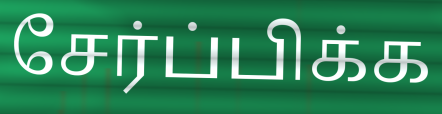
சேர்ப்பிக்க